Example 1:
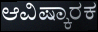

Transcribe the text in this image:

ಆವಿಷ್ಕಾರಕ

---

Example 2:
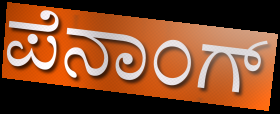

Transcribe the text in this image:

ಪೆನಾಂಗ್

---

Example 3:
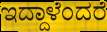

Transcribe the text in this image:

ಇದ್ದಾಳೆಂದರೆ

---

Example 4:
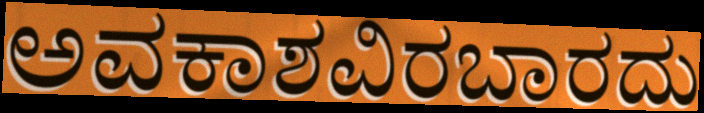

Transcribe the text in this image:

ಅವಕಾಶವಿರಬಾರದು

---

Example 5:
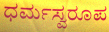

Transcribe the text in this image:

ಧರ್ಮಸ್ವರೂಪ